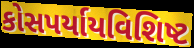
કોસપર્યાયવિશિષ્ટ